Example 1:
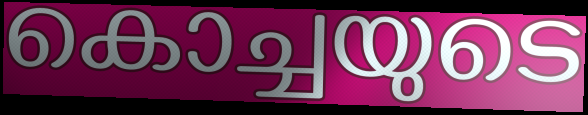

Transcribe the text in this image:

കൊച്ചയുടെ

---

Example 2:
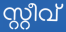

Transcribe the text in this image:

സ്റ്റീവ്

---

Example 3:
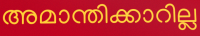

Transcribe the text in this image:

അമാന്തിക്കാറില്ല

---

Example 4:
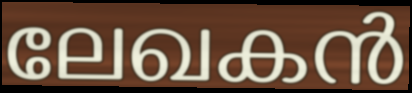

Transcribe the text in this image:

ലേഖകൻ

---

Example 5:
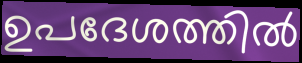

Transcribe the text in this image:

ഉപദേശത്തിൽ